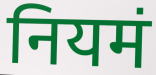
नियमं